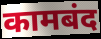
कामबंद